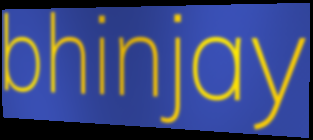
bhinjay